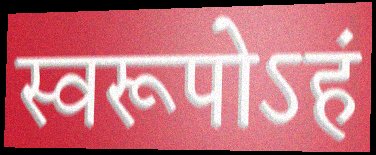
स्वरूपोऽहं